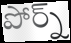
పోర్న్